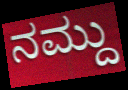
ನಮ್ದು